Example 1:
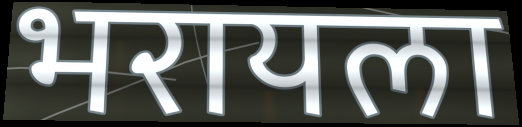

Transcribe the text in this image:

भरायला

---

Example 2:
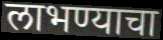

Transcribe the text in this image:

लाभण्याचा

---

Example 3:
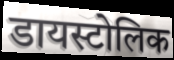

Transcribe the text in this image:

डायस्टोलिक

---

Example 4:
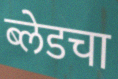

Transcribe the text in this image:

ब्लेडचा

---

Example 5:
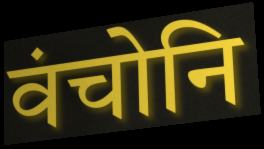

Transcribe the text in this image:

वंचोनि